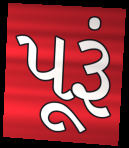
પૂરૂં